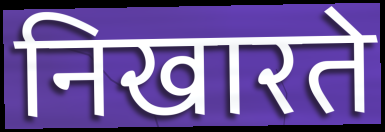
निखारते